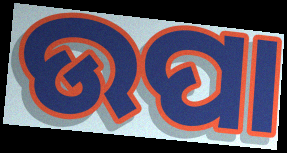
ଉପା